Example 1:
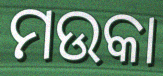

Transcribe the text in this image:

ମଉକା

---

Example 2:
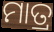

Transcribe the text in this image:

ମାତ୍ର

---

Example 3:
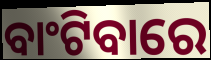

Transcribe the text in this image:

ବାଂଟିବାରେ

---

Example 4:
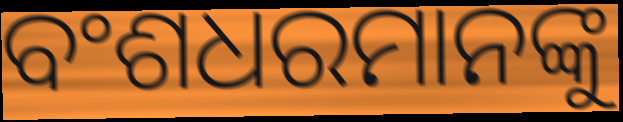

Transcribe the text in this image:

ବଂଶଧରମାନଙ୍କୁ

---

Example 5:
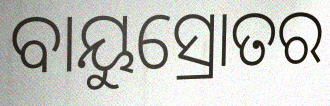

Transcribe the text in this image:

ବାୟୁସ୍ରୋତର